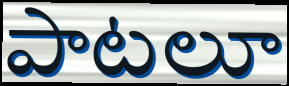
పాటలూ